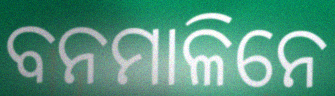
ବନମାଳିନେ